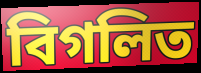
বিগলিত